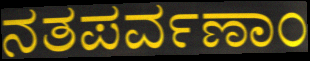
ನತಪರ್ವಣಾಂ